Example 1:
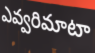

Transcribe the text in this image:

ఎవ్వరిమాటా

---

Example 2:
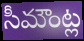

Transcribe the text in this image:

సీమౌంట్ల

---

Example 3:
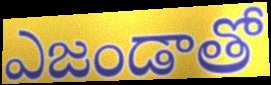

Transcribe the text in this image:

ఎజండాతో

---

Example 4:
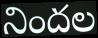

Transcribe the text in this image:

నిందల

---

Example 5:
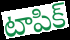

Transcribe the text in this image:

టాపిక్